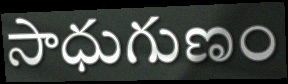
సాధుగుణం